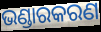
ଭଣ୍ଡାରକରଣ